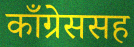
काँग्रेससह